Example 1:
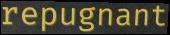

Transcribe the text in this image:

repugnant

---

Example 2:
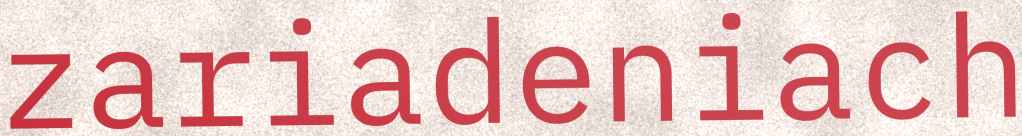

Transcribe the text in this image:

zariadeniach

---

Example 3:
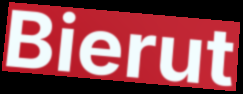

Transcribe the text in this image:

Bierut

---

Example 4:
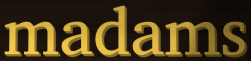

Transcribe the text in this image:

madams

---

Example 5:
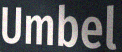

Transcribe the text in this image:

Umbel